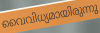
വൈവിധ്യമായിരുന്നു